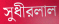
সুধীরলাল